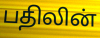
பதிலின்